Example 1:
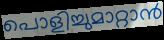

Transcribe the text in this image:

പൊളിച്ചുമാറ്റാൻ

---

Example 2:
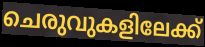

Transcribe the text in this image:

ചെരുവുകളിലേക്ക്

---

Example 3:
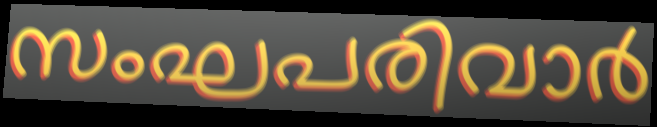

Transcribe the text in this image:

സംഘപരിവാർ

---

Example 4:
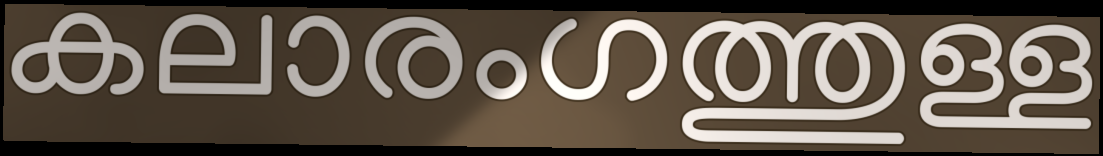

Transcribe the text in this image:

കലാരംഗത്തുള്ള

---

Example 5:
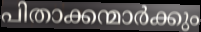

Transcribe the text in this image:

പിതാക്കന്മാർക്കും